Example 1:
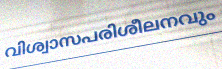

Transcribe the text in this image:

വിശ്വാസപരിശീലനവും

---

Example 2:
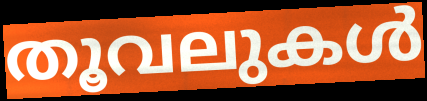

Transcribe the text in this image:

തൂവലുകൾ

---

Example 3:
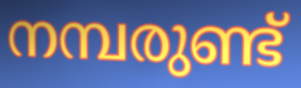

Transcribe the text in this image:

നമ്പരുണ്ട്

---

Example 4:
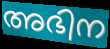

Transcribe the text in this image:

അഭിന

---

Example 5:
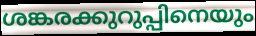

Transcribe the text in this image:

ശങ്കരക്കുറുപ്പിനെയും